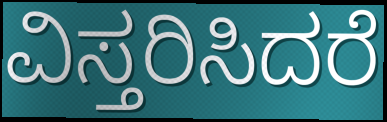
ವಿಸ್ತರಿಸಿದರೆ